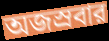
অজস্রবার